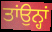
ਤਾਂਉਨ੍ਹਾਂ